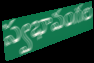
స్వభావంగల